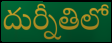
దుర్నీతిలో